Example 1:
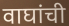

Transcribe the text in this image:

वाघांची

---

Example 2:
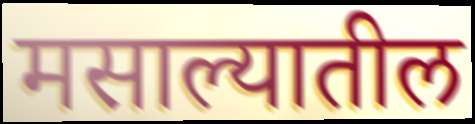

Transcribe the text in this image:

मसाल्यातील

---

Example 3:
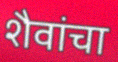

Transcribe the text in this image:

शैवांचा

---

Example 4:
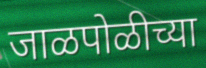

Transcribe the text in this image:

जाळपोळीच्या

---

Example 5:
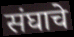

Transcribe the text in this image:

संघाचे